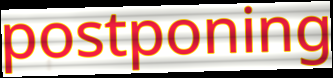
postponing